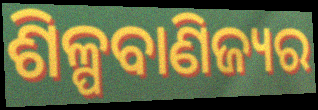
ଶିଳ୍ପବାଣିଜ୍ୟର